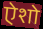
ऐशो